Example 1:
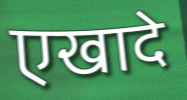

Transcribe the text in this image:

एखादे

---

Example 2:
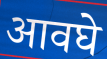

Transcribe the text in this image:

आवघे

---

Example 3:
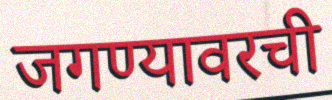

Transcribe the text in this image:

जगण्यावरची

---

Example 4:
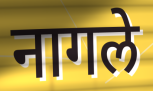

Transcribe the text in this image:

नागले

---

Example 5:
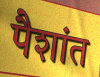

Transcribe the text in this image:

पैशांत